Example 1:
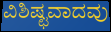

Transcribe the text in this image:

ವಿಶಿಷ್ಟವಾದವು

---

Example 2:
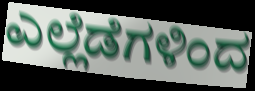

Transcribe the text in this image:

ಎಲ್ಲೆಡೆಗಳಿಂದ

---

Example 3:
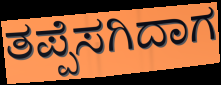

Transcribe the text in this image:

ತಪ್ಪೆಸಗಿದಾಗ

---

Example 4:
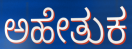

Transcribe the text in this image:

ಅಹೇತುಕ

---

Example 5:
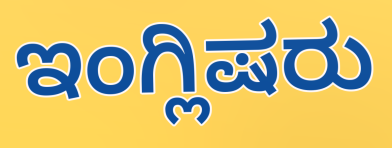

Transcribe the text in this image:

ಇಂಗ್ಲಿಷರು